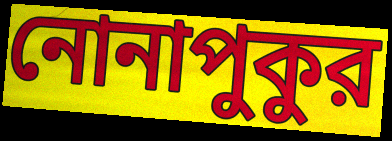
নোনাপুকুর